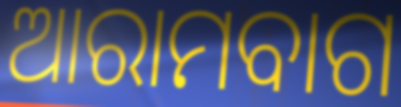
ଆରାମବାଗ